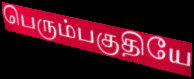
பெரும்பகுதியே